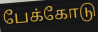
பேக்கோடு